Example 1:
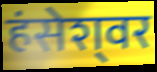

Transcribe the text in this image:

हंसेश्वर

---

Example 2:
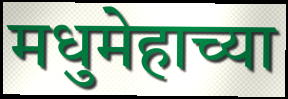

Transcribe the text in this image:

मधुमेहाच्या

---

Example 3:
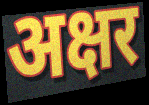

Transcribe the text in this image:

अक्षर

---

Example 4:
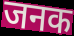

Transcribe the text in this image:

जनक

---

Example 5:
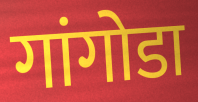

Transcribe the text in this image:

गांगोडा